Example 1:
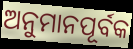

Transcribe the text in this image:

ଅନୁମାନପୂର୍ବକ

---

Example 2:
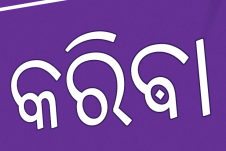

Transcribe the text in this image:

କରିଵା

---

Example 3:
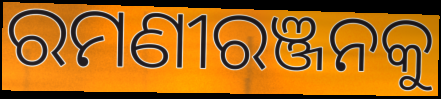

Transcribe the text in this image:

ରମଣୀରଞ୍ଜନକୁ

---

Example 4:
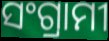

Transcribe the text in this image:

ସଂଗ୍ରାମୀ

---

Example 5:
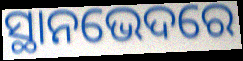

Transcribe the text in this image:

ସ୍ଥାନଭେଦରେ